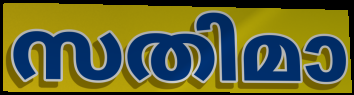
സതിമാ